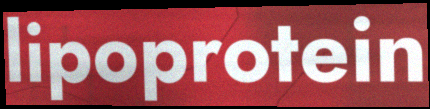
lipoprotein